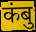
कंबु